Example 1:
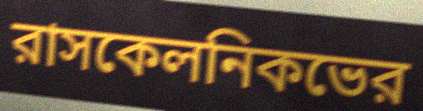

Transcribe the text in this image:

রাসকেলনিকভের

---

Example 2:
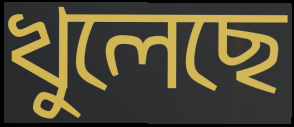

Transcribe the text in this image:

খুলেছে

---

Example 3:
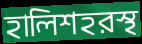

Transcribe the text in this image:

হালিশহরস্থ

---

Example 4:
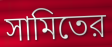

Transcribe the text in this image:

সামিতের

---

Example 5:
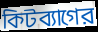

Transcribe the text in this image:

কিটব্যাগের